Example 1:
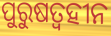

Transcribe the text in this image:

ପୁରୁଷତ୍ୱହୀନ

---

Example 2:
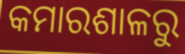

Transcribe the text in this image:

କମାରଶାଳରୁ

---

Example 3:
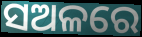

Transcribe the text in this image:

ସଅଳରେ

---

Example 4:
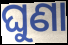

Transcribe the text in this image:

ଘୁଣା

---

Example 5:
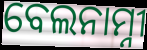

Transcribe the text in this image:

ବେଲନାମ୍ନୀ